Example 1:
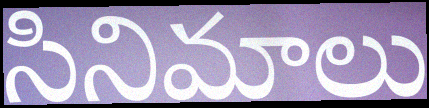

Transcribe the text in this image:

సినిమాలు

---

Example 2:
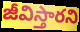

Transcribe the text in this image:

జీవిస్తారని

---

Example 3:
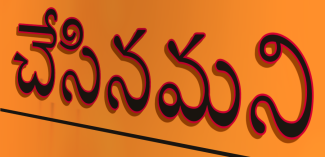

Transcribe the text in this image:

చేసినమని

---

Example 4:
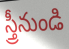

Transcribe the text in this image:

స్త్రీనుండి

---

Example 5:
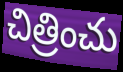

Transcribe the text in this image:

చిత్రించు